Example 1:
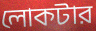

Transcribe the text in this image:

লোকটার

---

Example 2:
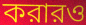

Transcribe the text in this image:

করারও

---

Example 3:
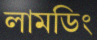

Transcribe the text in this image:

লামডিং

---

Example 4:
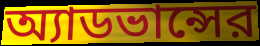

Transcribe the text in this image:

অ্যাডভান্সের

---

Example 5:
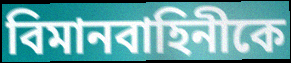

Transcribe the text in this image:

বিমানবাহিনীকে